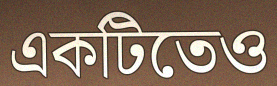
একটিতেও